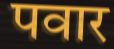
पवार